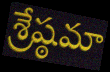
శ్రేష్ఠమా